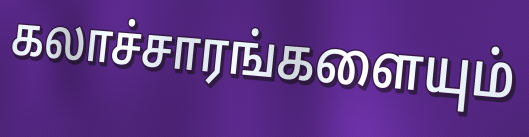
கலாச்சாரங்களையும்